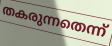
തകരുന്നതെന്ന്